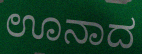
ಊನಾದ